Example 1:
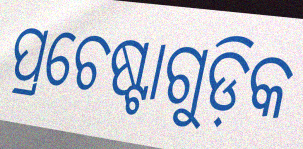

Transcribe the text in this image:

ପ୍ରଚେଷ୍ଟାଗୁଡ଼ିକ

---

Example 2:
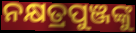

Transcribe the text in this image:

ନକ୍ଷତ୍ରପୁଞ୍ଜଙ୍କୁ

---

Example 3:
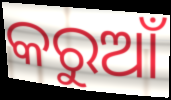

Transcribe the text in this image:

କରୁଆଁ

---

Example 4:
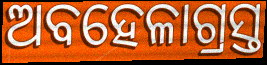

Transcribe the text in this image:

ଅବହେଳାଗ୍ରସ୍ତ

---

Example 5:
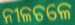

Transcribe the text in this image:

ନୀଳଚଳେ